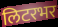
लिटरभर